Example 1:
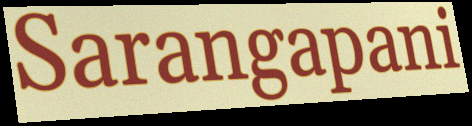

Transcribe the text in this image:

Sarangapani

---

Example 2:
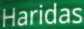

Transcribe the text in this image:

Haridas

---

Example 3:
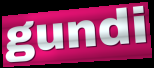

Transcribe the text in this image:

gundi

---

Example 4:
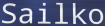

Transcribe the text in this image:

Sailko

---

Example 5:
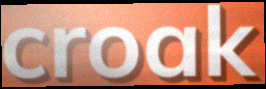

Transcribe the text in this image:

croak